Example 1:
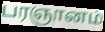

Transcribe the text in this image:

பரஞானம்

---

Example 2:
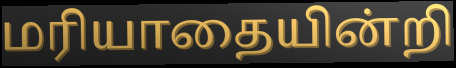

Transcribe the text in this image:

மரியாதையின்றி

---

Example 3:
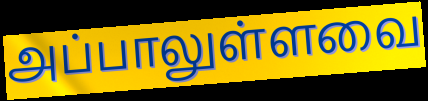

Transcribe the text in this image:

அப்பாலுள்ளவை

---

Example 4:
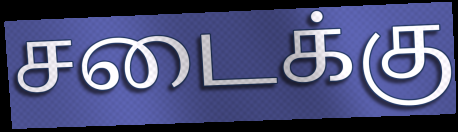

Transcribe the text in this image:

சடைக்கு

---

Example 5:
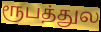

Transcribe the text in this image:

ரூபத்துல